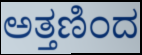
ಅತ್ತಣಿಂದ